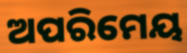
ଅପରିମେୟ